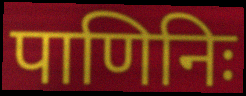
पाणिनिः